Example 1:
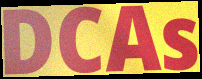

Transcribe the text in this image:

DCAs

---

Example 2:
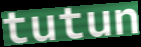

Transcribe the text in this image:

tutun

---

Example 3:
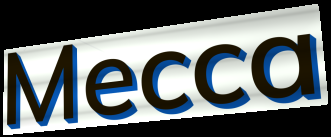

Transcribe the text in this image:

Mecca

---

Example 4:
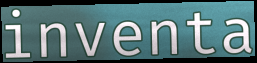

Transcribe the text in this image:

inventa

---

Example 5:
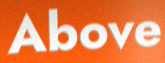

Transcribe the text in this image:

Above